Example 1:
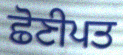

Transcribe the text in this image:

ਛੋਣੀਪਤ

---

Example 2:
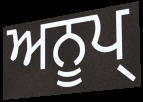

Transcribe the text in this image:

ਅਨੂਪ੍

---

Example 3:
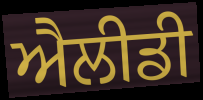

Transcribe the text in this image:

ਐਲੀਡੀ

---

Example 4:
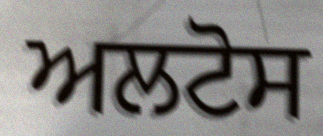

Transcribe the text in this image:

ਅਲਟੋਸ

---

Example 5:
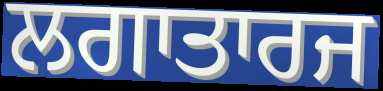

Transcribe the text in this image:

ਲਗਾਤਾਰਜ